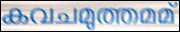
കവചമുത്തമമ്